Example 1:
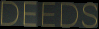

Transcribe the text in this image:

DEEDS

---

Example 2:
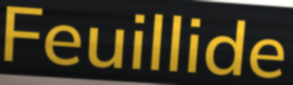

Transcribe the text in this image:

Feuillide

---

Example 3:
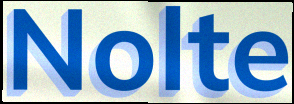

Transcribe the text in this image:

Nolte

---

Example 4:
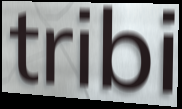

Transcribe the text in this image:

tribi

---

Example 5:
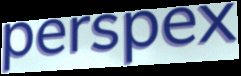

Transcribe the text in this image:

perspex